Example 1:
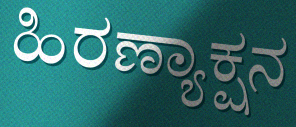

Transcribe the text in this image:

ಹಿರಣ್ಯಾಕ್ಷನ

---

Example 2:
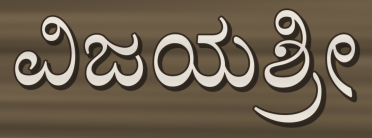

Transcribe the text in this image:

ವಿಜಯಶ್ರೀ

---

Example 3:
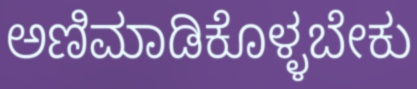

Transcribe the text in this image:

ಅಣಿಮಾಡಿಕೊಳ್ಳಬೇಕು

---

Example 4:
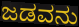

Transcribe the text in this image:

ಜಡವನು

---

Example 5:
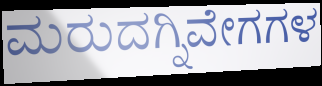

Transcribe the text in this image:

ಮರುದಗ್ನಿವೇಗಗಳ